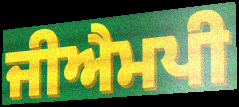
ਜੀਐਮਪੀ